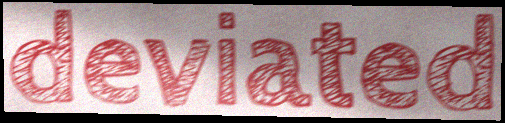
deviated